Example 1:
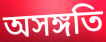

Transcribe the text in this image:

অসঙ্গতি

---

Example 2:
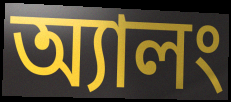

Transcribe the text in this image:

অ্যালং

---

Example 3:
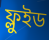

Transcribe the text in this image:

ফ্লুইড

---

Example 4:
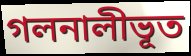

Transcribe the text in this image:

গলনালীভূত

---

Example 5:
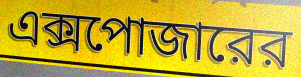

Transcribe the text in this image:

এক্সপোজারের